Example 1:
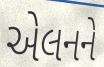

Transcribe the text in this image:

એલનને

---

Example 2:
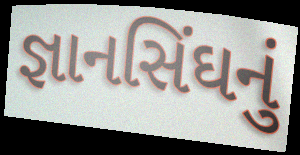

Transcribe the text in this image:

જ્ઞાનસિંઘનું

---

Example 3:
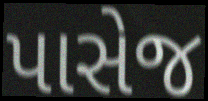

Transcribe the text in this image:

પાસેજ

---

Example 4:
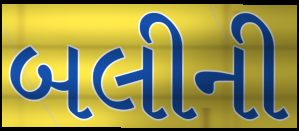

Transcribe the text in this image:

બલીની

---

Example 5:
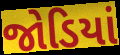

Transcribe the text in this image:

જોડિયાં